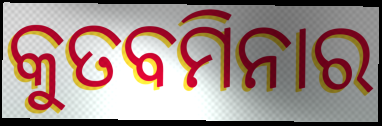
କୁତବମିନାର